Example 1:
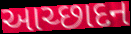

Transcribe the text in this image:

આચ્છાદન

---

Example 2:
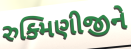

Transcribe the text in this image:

રુક્મિણીજીને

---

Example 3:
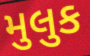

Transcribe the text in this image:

મુલુક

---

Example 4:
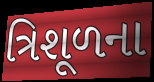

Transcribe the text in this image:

ત્રિશૂળના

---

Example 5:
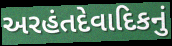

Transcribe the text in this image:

અરહંતદેવાદિકનું